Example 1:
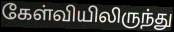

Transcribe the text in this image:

கேள்வியிலிருந்து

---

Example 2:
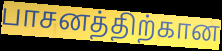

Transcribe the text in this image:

பாசனத்திற்கான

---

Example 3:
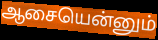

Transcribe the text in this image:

ஆசையென்னும்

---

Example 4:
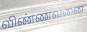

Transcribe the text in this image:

விண்ணவனை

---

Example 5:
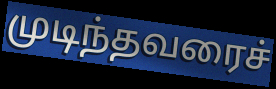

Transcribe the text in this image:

முடிந்தவரைச்